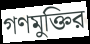
গণমুক্তির